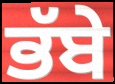
ਭੱਬੇ